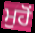
ਮੁਹੋਂ